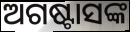
ଅଗଷ୍ଟାସଙ୍କ